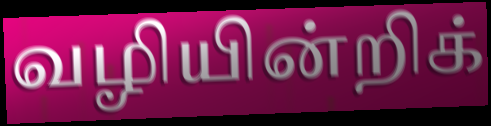
வழியின்றிக்